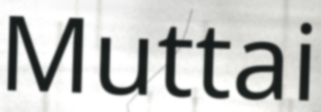
Muttai